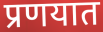
प्रणयात